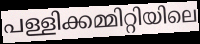
പള്ളിക്കമ്മിറ്റിയിലെ